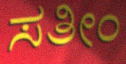
ಸತೀಂ